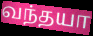
வந்தயா